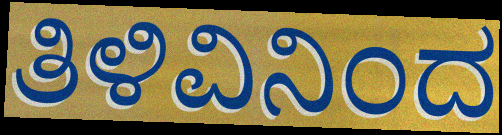
ತಿಳಿವಿನಿಂದ